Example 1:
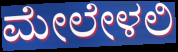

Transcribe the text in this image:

ಮೇಲೇಳಲಿ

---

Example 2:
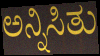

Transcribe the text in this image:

ಅನ್ನಿಸಿತು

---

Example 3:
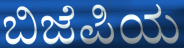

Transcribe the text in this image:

ಬಿಜೆಪಿಯ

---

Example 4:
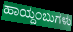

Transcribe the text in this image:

ಹಾಯ್ದಂಬುಗಳು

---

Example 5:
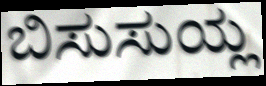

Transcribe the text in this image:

ಬಿಸುಸುಯ್ಲ